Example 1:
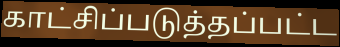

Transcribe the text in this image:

காட்சிப்படுத்தப்பட்ட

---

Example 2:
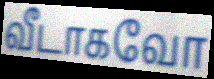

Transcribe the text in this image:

வீடாகவோ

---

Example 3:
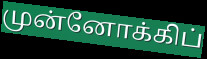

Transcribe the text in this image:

முன்னோக்கிப்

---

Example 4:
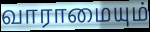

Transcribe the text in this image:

வாராமையும்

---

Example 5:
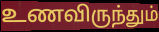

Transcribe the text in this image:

உணவிருந்தும்